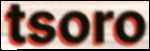
tsoro